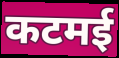
कटमई